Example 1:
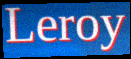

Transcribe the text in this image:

Leroy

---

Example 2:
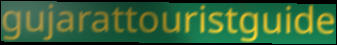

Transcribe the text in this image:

gujarattouristguide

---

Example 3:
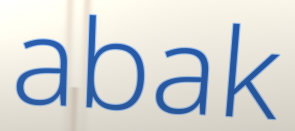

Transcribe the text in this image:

abak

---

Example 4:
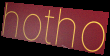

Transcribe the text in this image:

hotho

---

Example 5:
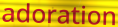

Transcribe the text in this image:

adoration